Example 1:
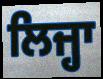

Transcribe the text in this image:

ਲਿਜ੍ਹਾ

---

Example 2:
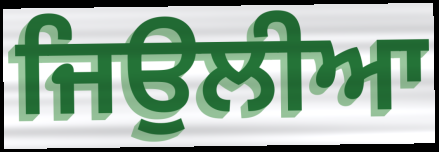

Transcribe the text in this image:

ਜਿਉਲੀਆ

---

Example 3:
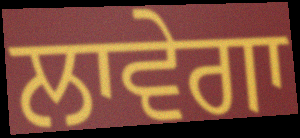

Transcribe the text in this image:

ਲਾਵੇਗਾ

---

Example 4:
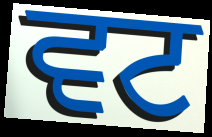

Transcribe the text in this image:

ਵਟ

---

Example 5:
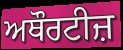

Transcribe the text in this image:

ਅਥੌਰਟੀਜ਼